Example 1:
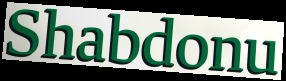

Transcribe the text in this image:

Shabdonu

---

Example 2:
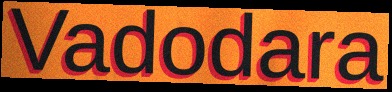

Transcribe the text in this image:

Vadodara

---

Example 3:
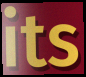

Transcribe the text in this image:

its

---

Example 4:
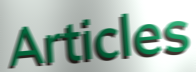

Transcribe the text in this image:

Articles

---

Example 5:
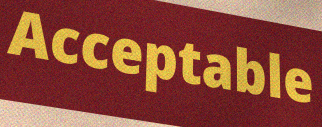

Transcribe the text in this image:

Acceptable